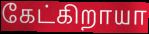
கேட்கிறாயா